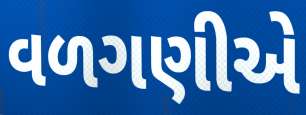
વળગણીએ